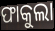
ଫାକୁଲା